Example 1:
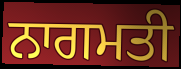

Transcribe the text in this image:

ਨਾਗਮਤੀ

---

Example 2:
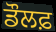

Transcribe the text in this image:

ਡੌਲਫ਼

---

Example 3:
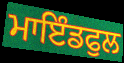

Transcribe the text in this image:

ਮਾਇੰਡਫੁਲ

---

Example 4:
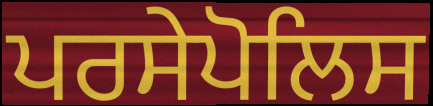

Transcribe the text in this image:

ਪਰਸੇਪੋਲਿਸ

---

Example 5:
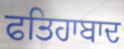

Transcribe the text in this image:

ਫਤਿਹਾਬਾਦ